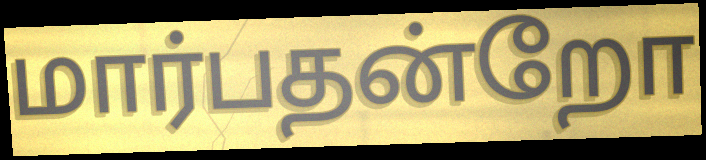
மார்பதன்றோ